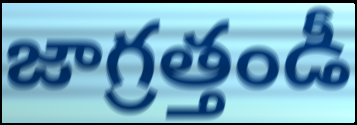
జాగ్రత్తండీ